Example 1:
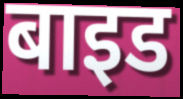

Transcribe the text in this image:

बाइड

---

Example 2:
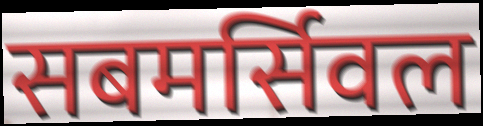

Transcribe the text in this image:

सबमर्सिवल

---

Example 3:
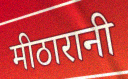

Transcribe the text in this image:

मीठारानी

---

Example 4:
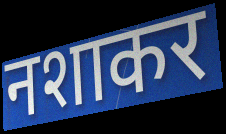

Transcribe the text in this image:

नशाकर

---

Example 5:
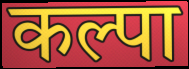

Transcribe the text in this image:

कल्पा